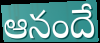
ఆనందే